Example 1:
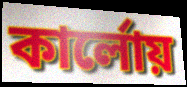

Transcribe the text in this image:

কার্লোয়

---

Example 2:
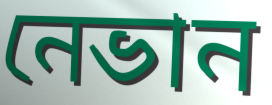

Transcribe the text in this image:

নেভান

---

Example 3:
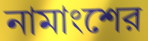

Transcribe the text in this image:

নামাংশের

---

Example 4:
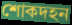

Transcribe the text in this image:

শোকদহন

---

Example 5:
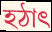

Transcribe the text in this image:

হঠাৎ